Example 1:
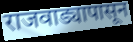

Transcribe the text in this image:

राजवाड्यापासून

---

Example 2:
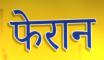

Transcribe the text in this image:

फेरान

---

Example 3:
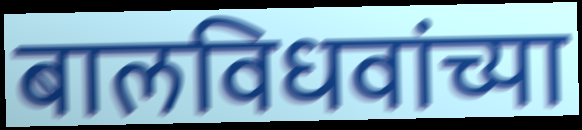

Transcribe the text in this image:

बालविधवांच्या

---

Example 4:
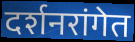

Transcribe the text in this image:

दर्शनरांगेत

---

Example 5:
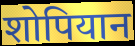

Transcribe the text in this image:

शोपियान